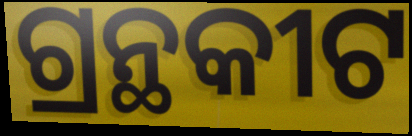
ଗ୍ରନ୍ଥକୀଟ